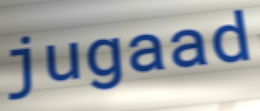
jugaad